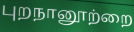
புறநானூற்றை